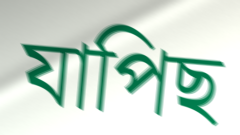
যাপিছ